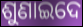
ଶୁଣାଇଦେ